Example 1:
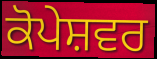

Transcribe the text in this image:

ਕੋਪੇਸ਼ਵਰ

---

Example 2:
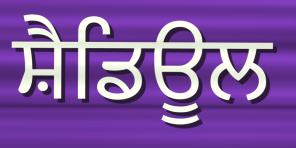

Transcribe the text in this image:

ਸ਼ੈਡਿਊਲ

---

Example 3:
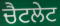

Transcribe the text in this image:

ਚੈਟਲੇਟ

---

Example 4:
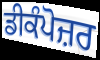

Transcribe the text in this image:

ਡੀਕੰਪੋਜ਼ਰ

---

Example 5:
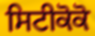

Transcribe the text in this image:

ਸਿਟੀਕੋਕੋ